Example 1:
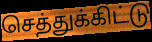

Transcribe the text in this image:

செத்துக்கிட்டு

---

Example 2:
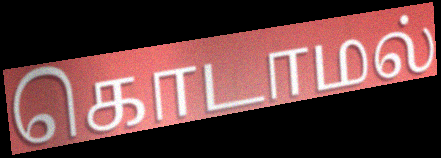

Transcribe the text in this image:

கொடாமல்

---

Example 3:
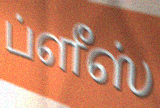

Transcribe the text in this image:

ப்ளீஸ்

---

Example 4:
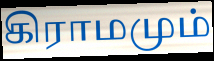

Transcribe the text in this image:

கிராமமும்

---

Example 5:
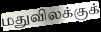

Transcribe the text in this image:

மதுவிலக்குக்